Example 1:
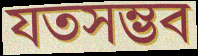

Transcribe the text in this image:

যতসম্ভব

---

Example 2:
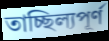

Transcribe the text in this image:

তাচ্ছিল্যপূর্ণ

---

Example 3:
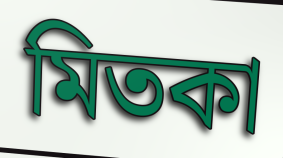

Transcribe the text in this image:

মিতকা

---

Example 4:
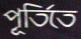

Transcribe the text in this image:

পূর্তিতে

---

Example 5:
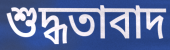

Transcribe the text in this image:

শুদ্ধতাবাদ